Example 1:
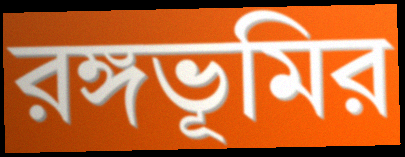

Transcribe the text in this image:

রঙ্গভূমির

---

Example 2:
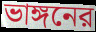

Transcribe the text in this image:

ভাঙ্গনের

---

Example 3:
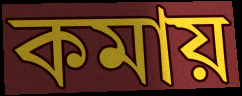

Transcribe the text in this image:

কমায়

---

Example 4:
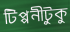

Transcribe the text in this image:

টিপ্পনীটুকু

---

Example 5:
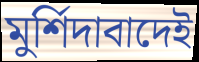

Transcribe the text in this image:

মুর্শিদাবাদেই